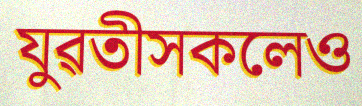
যুৱতীসকলেও